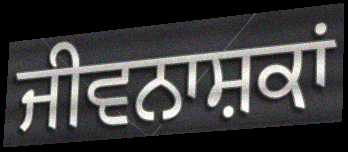
ਜੀਵਨਾਸ਼ਕਾਂ